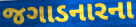
જગાડનારના